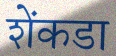
शेंकडा